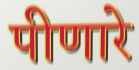
पीणारे